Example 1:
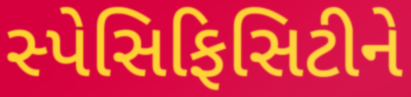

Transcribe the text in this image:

સ્પેસિફિસિટીને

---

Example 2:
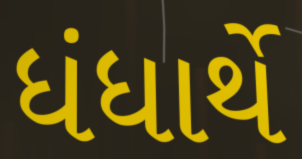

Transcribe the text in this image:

ધંધાર્થે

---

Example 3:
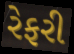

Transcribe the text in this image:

રેફરી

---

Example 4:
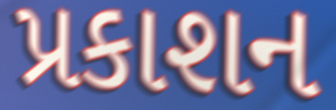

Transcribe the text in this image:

પ્રકાશન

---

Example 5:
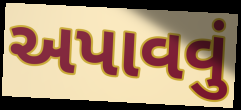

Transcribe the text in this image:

અપાવવું